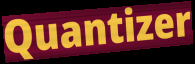
Quantizer